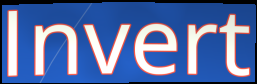
Invert